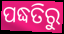
ପଦ୍ଧତିରୁ